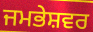
ਜਮਭੇਸ਼ਵਰ